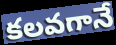
కలవగానే